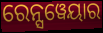
ରେନ୍ସୱେୟାର